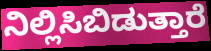
ನಿಲ್ಲಿಸಿಬಿಡುತ್ತಾರೆ